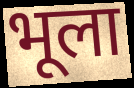
भूला